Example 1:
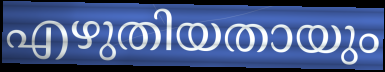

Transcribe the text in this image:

എഴുതിയതായും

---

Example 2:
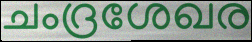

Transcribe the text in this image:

ചംദ്രശേഖര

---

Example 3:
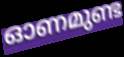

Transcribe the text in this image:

ഓണമുണ്ട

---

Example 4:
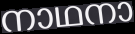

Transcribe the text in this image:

നാഥനാ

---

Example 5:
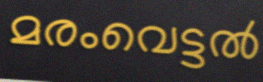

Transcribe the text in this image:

മരംവെട്ടൽ